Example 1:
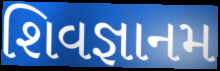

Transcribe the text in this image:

શિવજ્ઞાનમ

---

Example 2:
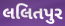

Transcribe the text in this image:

લલિતપુર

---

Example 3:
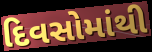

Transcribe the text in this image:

દિવસોમાંથી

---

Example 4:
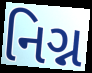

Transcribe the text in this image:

નિગ્ન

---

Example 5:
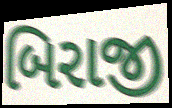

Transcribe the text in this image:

બિરાજી